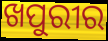
ଖପୁରୀର